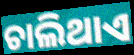
ଚାଲିଥାଏ